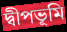
দ্বীপভূমি